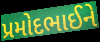
પ્રમોદભાઈને